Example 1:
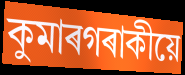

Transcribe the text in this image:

কুমাৰগৰাকীয়ে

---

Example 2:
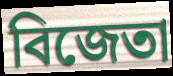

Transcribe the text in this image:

বিজেতা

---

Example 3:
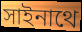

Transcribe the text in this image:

সাইনাথে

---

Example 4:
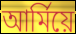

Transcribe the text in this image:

আৰ্মিয়ে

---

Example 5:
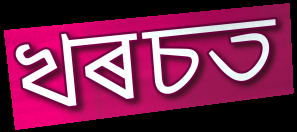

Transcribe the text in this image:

খৰচত